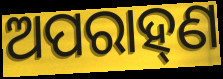
ଅପରାହ୍‍ଣ